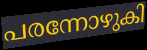
പരന്നോഴുകി